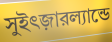
সুইৎজ়ারল্যান্ডে